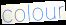
colour